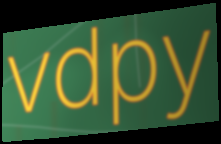
vdpy